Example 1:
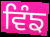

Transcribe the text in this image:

ਵਿੰਙ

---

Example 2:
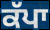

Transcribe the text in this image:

ਕੱਪਾ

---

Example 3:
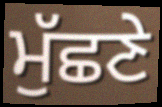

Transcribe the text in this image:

ਮੁੱਛਣੇ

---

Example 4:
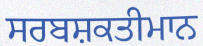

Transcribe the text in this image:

ਸਰਬਸ਼ਕਤੀਮਾਨ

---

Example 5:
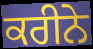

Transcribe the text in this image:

ਕਰੀਨੇ